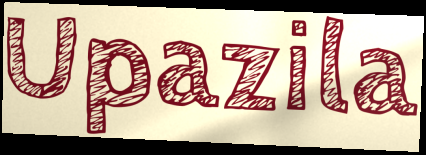
Upazila